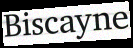
Biscayne